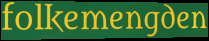
folkemengden